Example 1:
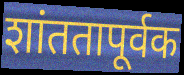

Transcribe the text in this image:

शांततापूर्वक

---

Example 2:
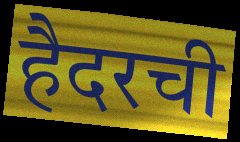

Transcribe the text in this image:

हैदरची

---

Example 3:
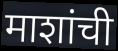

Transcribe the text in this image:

माशांची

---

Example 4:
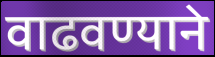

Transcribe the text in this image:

वाढवण्याने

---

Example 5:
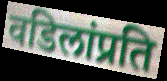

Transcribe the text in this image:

वडिलांप्रति